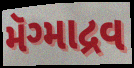
મૅગ્માદ્રવ